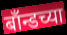
बाँन्डच्या